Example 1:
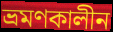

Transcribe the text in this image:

ভ্রমণকালীন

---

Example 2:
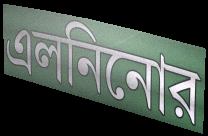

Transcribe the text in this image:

এলনিনোর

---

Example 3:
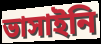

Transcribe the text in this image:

ভাসাইনি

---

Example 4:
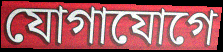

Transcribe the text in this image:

যোগাযোগে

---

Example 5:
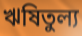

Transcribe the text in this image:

ঋষিতুল্য